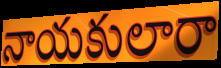
నాయకులారా